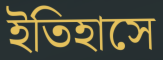
ইতিহাসে